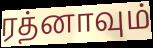
ரத்னாவும்